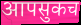
आपसुकच